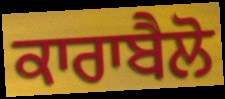
ਕਾਰਾਬੈਲੋ